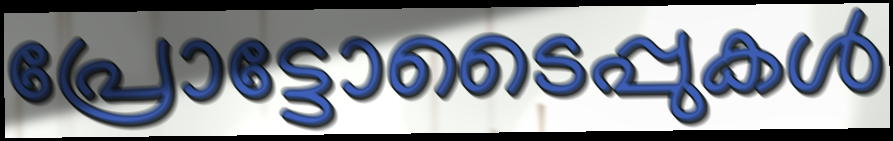
പ്രോട്ടോടൈപ്പുകൾ